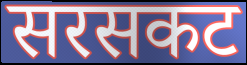
सरसकट